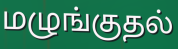
மழுங்குதல்